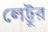
লেট্টুর